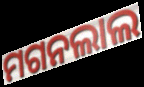
ମଗନଲାଲ